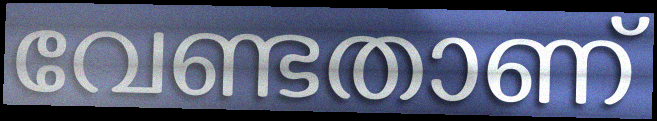
വേണ്ടതാണ്